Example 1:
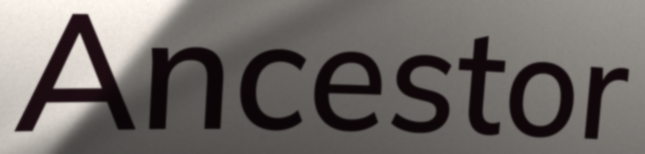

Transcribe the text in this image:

Ancestor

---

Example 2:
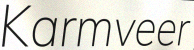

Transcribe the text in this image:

Karmveer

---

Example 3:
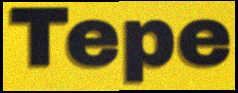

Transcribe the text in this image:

Tepe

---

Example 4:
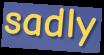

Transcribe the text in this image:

sadly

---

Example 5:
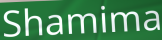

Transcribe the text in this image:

Shamima